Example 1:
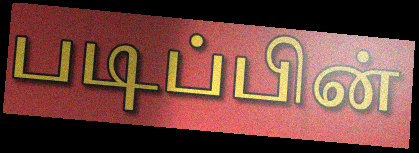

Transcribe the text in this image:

படிப்பின்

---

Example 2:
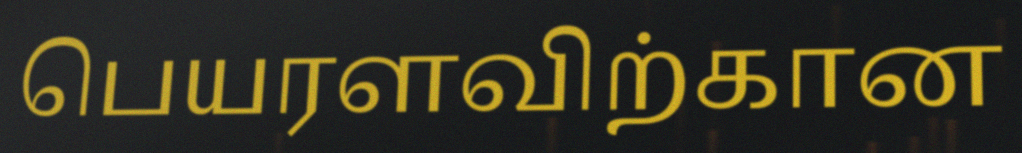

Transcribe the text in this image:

பெயரளவிற்கான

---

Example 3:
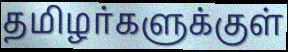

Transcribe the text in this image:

தமிழர்களுக்குள்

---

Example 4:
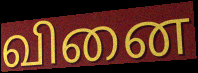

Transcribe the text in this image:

வினை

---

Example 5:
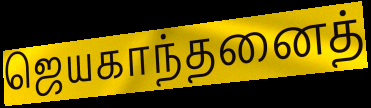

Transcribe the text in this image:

ஜெயகாந்தனைத்